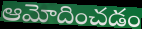
ఆమోదించడం